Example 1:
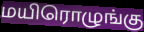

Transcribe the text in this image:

மயிரொழுங்கு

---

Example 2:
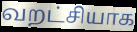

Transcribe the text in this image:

வறட்சியாக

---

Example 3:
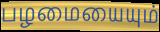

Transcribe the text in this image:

பழமையையும்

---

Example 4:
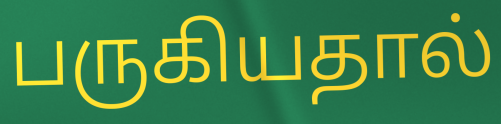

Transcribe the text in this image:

பருகியதால்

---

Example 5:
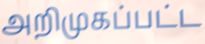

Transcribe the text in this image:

அறிமுகப்பட்ட